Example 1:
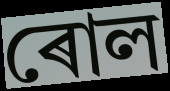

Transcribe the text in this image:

ৰোল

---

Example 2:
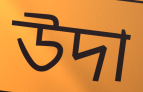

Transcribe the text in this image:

উদা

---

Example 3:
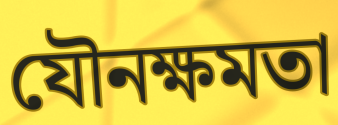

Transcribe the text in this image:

যৌনক্ষমতা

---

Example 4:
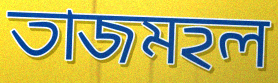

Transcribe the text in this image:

তাজমহল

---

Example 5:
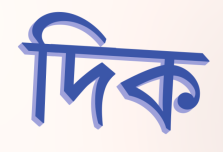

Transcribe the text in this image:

দিক